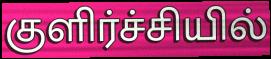
குளிர்ச்சியில்